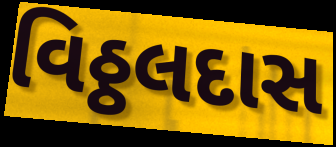
વિઠ્ઠલદાસ